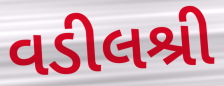
વડીલશ્રી